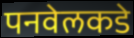
पनवेलकडे